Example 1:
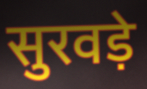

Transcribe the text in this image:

सुरवड़े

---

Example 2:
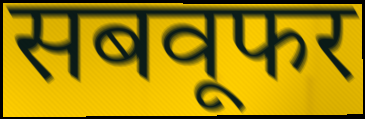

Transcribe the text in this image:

सबवूफर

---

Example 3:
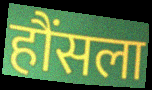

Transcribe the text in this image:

हौंसला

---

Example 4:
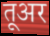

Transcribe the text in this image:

तूअर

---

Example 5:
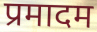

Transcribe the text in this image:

प्रमादम